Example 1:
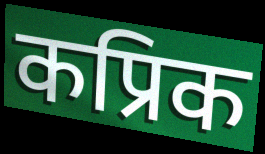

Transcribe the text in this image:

कप्रिक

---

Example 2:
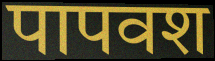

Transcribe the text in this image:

पापवश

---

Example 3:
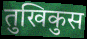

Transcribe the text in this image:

तुखिकुस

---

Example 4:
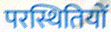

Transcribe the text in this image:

परस्थितियों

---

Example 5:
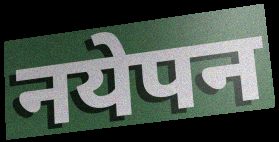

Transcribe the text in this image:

नयेपन